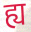
ह्य